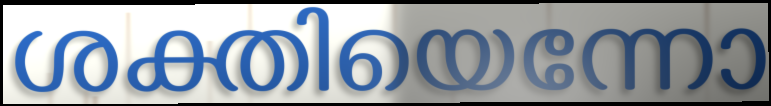
ശക്തിയെന്നോ